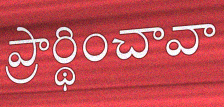
ప్రార్థించావా